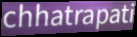
chhatrapati